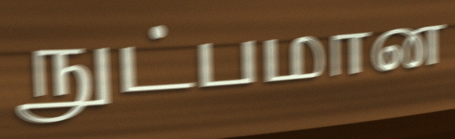
நுட்பமான